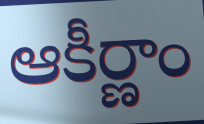
ఆకీర్ణాం